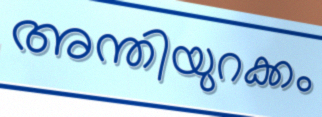
അന്തിയുറക്കം